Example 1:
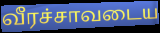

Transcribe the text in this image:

வீரச்சாவடைய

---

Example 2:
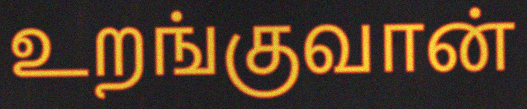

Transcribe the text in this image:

உறங்குவான்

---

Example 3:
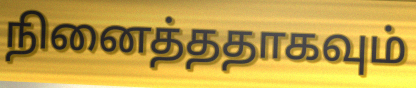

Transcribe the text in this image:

நினைத்ததாகவும்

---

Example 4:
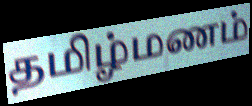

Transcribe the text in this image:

தமிழ்மணம்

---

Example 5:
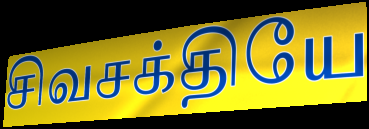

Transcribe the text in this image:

சிவசக்தியே